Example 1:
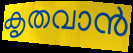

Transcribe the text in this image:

കൃതവാൻ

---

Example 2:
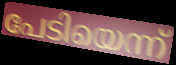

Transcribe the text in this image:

പേടിയെന്ന്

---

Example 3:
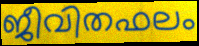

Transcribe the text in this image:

ജീവിതഫലം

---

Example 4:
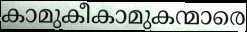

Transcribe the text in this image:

കാമുകീകാമുകന്മാരെ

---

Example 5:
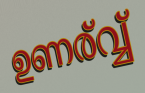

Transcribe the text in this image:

ഉണര്വ്വ്